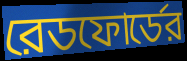
রেডফোর্ডের